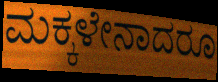
ಮಕ್ಕಳೇನಾದರೂ